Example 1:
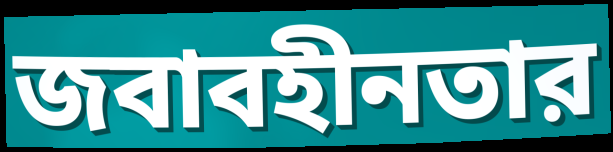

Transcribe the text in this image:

জবাবহীনতার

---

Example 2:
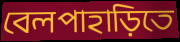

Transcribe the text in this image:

বেলপাহাড়িতে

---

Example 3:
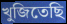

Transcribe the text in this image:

খুজিতেছি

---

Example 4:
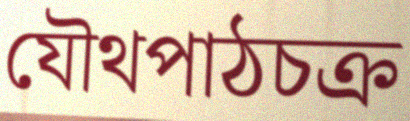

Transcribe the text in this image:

যৌথপাঠচক্র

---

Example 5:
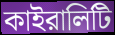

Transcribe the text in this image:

কাইরালিটি